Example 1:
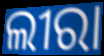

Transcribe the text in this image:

ଲୀରା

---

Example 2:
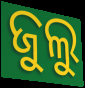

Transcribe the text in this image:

ଜୁଲୁ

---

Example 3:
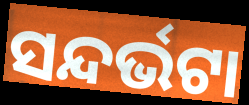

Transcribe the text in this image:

ସନ୍ଦର୍ଭଟା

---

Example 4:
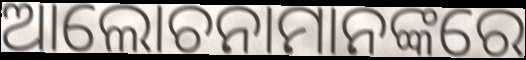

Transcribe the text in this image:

ଆଲୋଚନାମାନଙ୍କରେ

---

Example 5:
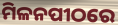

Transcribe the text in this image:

ମିଳନପୀଠରେ